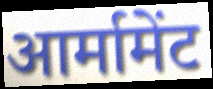
आर्मामेंट